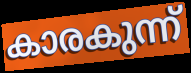
കാരകുന്ന്